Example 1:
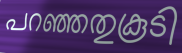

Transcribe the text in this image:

പറഞ്ഞതുകൂടി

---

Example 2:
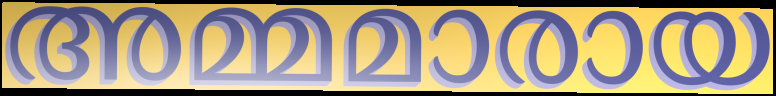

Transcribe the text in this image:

അമ്മമാരായ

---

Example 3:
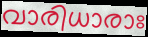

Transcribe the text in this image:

വാരിധാരാഃ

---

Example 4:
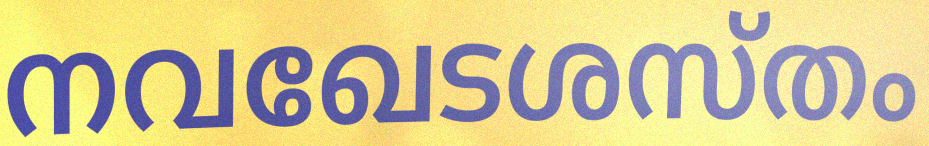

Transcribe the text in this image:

നവഖേടശസ്തം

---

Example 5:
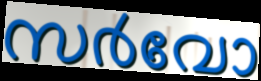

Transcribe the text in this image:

സർവോ